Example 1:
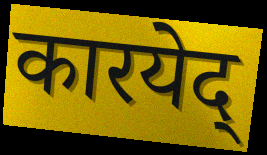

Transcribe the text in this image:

कारयेद्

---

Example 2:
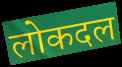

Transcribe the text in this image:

लोकदल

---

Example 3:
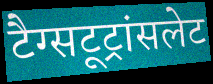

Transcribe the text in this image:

टैग्सटूट्रांसलेट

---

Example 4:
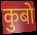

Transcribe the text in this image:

कुबो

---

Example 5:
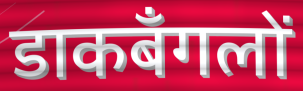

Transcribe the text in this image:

डाकबँगलों